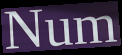
Num